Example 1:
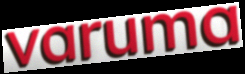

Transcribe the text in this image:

varuma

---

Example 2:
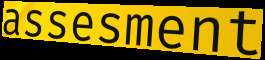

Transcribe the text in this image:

assesment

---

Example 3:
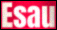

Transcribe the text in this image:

Esau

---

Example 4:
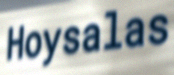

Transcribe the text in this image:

Hoysalas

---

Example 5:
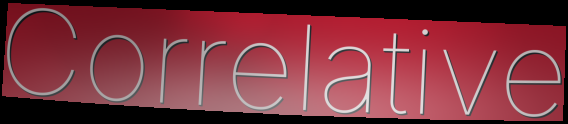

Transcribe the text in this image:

Correlative